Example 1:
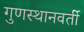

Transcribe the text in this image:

गुणस्थानवर्ती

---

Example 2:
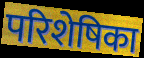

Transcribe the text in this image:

परिशेषिका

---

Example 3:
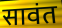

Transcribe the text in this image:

सावंत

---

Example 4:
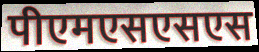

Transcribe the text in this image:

पीएमएसएसएस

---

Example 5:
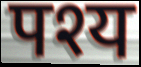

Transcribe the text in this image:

पश्य